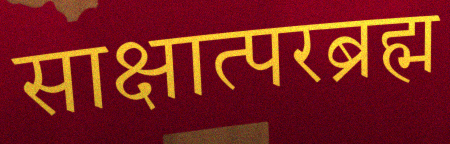
साक्षात्परब्रह्म